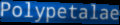
Polypetalae